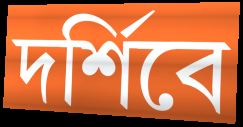
দর্শিবে